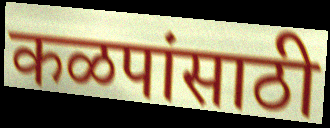
कळपांसाठी